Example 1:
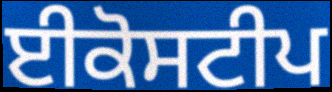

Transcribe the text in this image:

ਈਕੋਸਟੀਪ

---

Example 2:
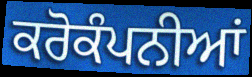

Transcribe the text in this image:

ਕਰੋਕੰਪਨੀਆਂ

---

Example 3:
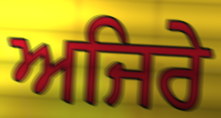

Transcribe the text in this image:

ਅਜਿਰੇ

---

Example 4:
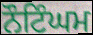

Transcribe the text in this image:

ਨੌਟਿੰਘਮ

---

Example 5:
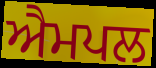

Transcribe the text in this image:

ਐਮਪਲ